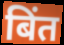
बिंत